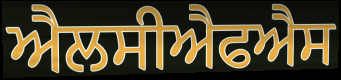
ਐਲਸੀਐਫਐਸ